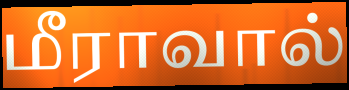
மீராவால்